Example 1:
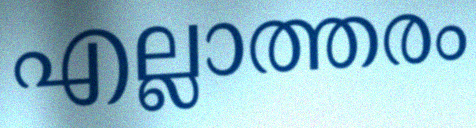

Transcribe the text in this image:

എല്ലാത്തരം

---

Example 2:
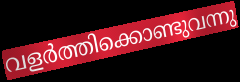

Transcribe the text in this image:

വളർത്തിക്കൊണ്ടുവന്നു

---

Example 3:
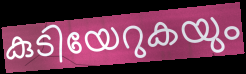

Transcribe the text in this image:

കുടിയേറുകയും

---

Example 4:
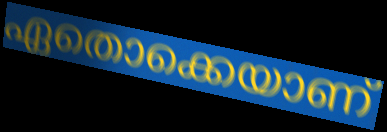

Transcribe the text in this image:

ഏതൊക്കെയാണ്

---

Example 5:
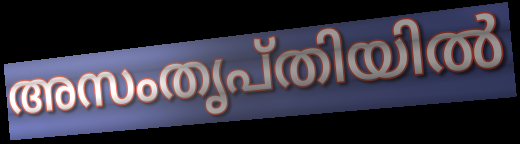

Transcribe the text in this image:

അസംതൃപ്തിയിൽ